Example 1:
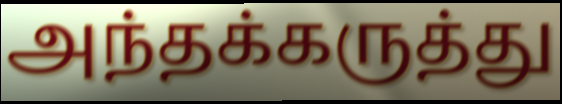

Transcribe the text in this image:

அந்தக்கருத்து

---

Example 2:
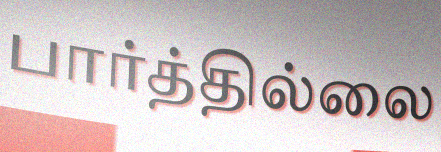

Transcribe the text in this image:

பார்த்தில்லை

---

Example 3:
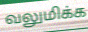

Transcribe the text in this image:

வலுமிக்க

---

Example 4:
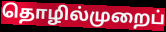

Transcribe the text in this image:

தொழில்முறைப்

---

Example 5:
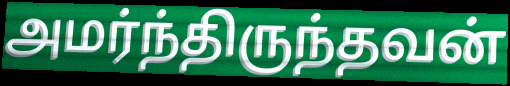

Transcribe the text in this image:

அமர்ந்திருந்தவன்